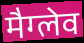
मैग्लेव